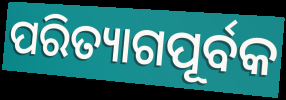
ପରିତ୍ୟାଗପୂର୍ବକ